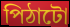
পিঠাটো